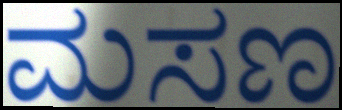
ಮಸಣ